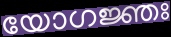
യോഗജ്ഞഃ